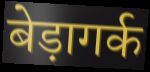
बेड़ागर्क